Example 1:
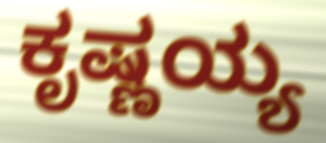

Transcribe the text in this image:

ಕೃಷ್ಣಯ್ಯ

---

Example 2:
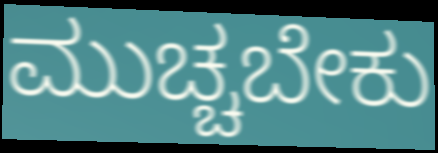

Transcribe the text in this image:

ಮುಚ್ಚಬೇಕು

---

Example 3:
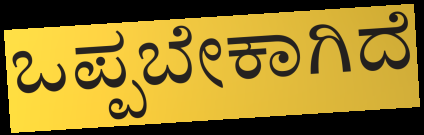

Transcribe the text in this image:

ಒಪ್ಪಬೇಕಾಗಿದೆ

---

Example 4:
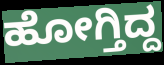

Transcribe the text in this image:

ಹೋಗ್ತಿದ್ದ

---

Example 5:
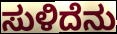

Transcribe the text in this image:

ಸುಳಿದೆನು